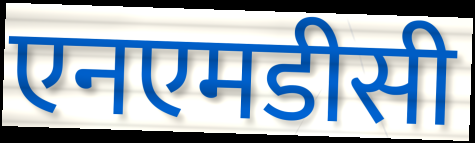
एनएमडीसी